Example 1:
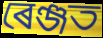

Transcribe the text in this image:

ৰেঞ্জত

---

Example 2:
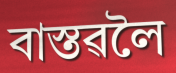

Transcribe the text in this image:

বাস্তৱলৈ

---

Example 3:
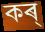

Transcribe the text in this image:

কৰ্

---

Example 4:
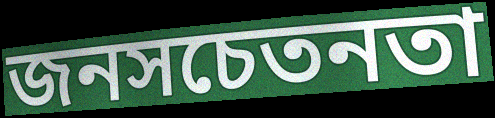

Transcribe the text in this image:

জনসচেতনতা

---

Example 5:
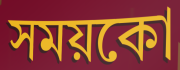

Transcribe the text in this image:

সময়কো